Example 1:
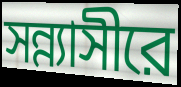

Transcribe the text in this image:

সন্ন্যাসীরে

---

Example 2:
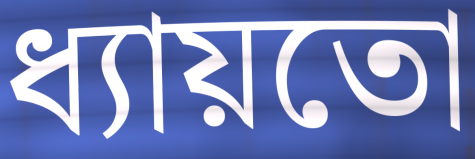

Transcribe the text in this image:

ধ্যায়তো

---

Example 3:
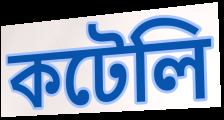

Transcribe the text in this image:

কটেলি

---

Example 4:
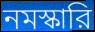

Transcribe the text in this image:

নমস্কারি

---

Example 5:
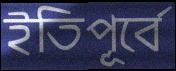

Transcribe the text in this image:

ইতিপূর্বে